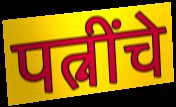
पत्नींचे